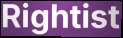
Rightist